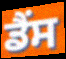
ਡੈਂਸ